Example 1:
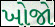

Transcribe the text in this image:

ખોજો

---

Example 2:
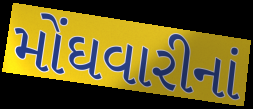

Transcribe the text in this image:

મોંઘવારીનાં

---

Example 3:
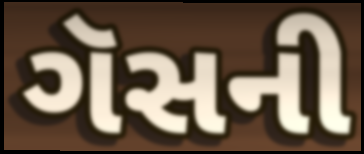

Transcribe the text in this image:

ગૅસની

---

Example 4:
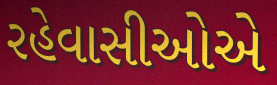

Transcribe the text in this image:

રહેવાસીઓએ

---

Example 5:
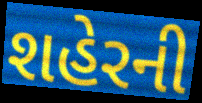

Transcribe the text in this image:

શહેરની